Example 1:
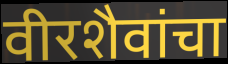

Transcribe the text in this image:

वीरशैवांचा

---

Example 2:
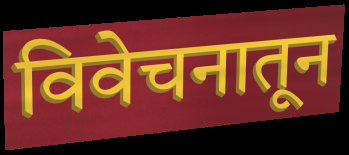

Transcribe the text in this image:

विवेचनातून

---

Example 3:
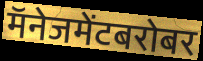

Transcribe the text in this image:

मॅनेजमेंटबरोबर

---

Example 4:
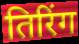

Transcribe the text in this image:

तिरिंग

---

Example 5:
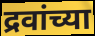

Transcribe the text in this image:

द्रवांच्या